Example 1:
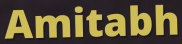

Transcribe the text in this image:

Amitabh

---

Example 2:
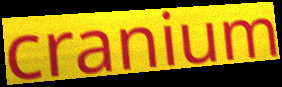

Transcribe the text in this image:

cranium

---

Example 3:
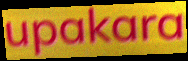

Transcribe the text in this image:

upakara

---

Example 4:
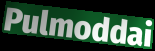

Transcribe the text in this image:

Pulmoddai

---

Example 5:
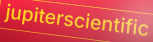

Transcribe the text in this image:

jupiterscientific